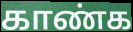
காண்க